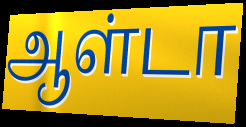
ஆள்டா